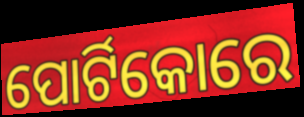
ପୋର୍ଟିକୋରେ